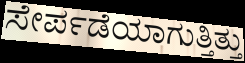
ಸೇರ್ಪಡೆಯಾಗುತ್ತಿತ್ತು